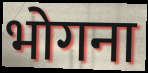
भोगना